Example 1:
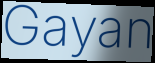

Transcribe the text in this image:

Gayan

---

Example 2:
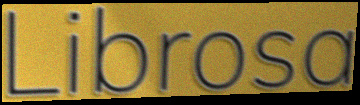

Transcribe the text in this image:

Librosa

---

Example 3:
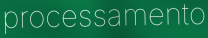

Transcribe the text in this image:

processamento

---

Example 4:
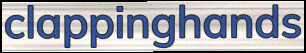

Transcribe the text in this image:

clappinghands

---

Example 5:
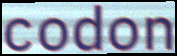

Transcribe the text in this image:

codon